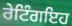
ਰੇਟਿੰਗਇਹ